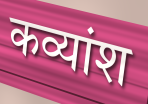
कव्यांश